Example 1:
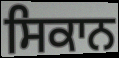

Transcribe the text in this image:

ਸਿਕਾਨ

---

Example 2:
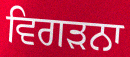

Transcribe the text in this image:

ਵਿਗੜਨਾ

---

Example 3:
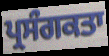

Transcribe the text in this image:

ਪ੍ਰਸੰਗਕਤਾ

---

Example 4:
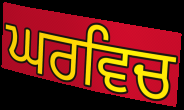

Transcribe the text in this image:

ਘਰਵਿਚ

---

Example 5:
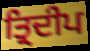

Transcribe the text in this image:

ਤ੍ਰਿਦੀਪ